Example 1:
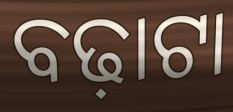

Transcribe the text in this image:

ବଢ଼ାଟା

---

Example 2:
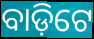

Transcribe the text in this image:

ବାଡ଼ିଟେ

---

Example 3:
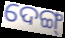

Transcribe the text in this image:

ଦେଙ୍ଗ୍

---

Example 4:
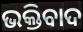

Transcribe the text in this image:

ଭକ୍ତିବାଦ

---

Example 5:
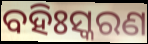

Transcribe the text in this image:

ବହିଃସ୍କରଣ